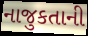
નાજુકતાની